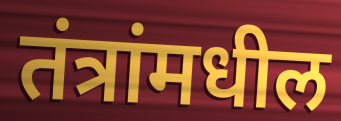
तंत्रांमधील